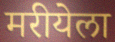
मरीयेला